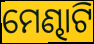
ମେଣ୍ଢାଟି